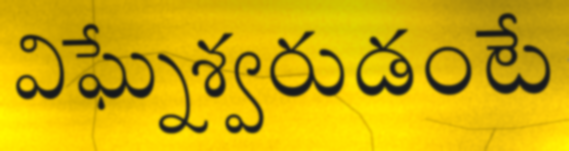
విఘ్నేశ్వరుడంటే